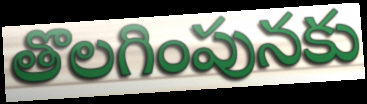
తొలగింపునకు